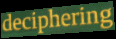
deciphering